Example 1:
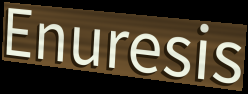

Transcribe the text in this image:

Enuresis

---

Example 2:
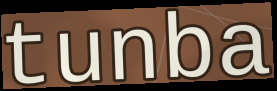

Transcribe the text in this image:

tunba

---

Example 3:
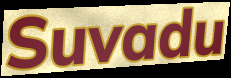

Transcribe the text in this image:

Suvadu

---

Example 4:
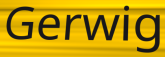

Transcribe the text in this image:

Gerwig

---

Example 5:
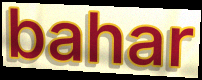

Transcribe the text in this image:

bahar